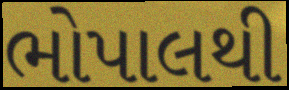
ભોપાલથી